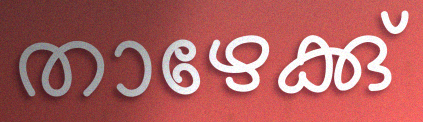
താഴേക്കു്